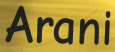
Arani